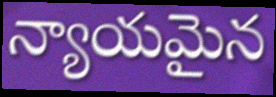
న్యాయమైన